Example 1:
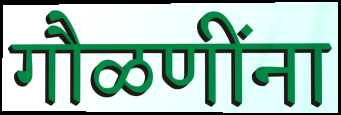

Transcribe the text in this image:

गौळणींना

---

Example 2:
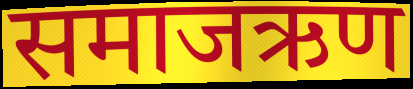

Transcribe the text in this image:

समाजऋण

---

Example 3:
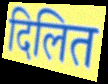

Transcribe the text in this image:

दिलित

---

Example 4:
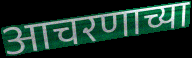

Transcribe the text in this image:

आचरणाच्या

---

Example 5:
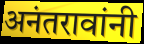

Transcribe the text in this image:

अनंतरावांनी